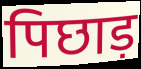
पिछाड़